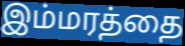
இம்மரத்தை